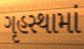
ગૃહસ્થામાં